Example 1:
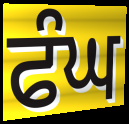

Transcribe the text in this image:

ਫੰਘ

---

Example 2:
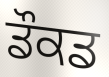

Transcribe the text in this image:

ਡੌਕਡ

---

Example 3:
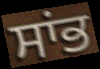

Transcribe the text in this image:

ਸਾਂਭ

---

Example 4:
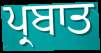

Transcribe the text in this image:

ਪ੍ਰਬਾਤ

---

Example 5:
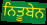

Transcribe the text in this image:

ਨਿਤੂਬੇਨ